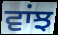
ਵਾਂਝ